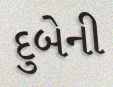
દુબેની